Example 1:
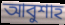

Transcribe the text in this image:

আবুশাহ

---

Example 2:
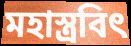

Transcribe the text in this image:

মহাস্ত্রবিৎ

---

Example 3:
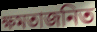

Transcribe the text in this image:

ক্ষমতাজনিত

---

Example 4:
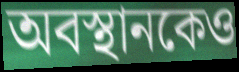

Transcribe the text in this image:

অবস্থানকেও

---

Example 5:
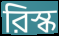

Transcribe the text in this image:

রিস্ক